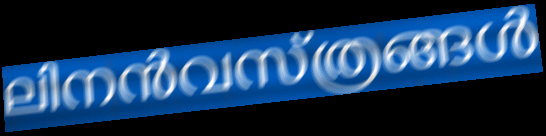
ലിനൻവസ്‌ത്രങ്ങൾ